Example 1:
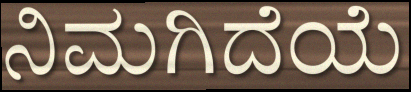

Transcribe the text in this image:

ನಿಮಗಿದೆಯೆ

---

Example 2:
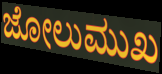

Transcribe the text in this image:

ಜೋಲುಮುಖ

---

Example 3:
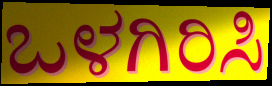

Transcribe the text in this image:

ಒಳಗಿರಿಸಿ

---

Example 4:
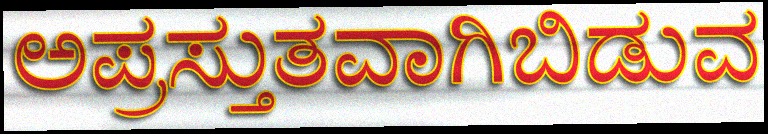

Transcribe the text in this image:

ಅಪ್ರಸ್ತುತವಾಗಿಬಿಡುವ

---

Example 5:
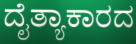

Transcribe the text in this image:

ದೈತ್ಯಾಕಾರದ